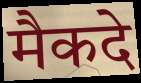
मैकदे